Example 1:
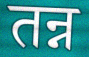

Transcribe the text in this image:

तन्न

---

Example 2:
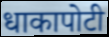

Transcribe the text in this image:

धाकापोटी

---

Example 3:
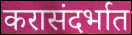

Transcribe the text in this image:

करासंदर्भात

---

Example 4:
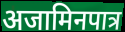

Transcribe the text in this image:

अजामिनपात्र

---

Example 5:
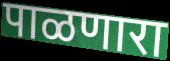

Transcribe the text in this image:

पाळणारा